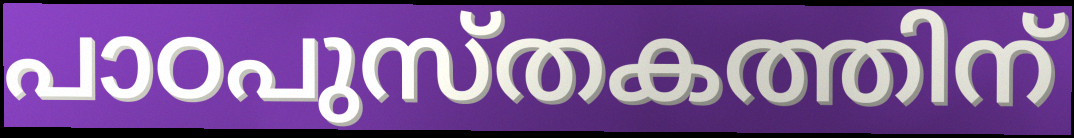
പാഠപുസ്തകത്തിന്